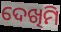
ଦେଖିମି